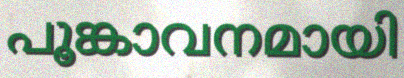
പൂങ്കാവനമായി